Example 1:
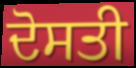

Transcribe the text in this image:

ਦੋਸਤੀ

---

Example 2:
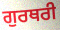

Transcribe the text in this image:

ਗੁਰਥਰੀ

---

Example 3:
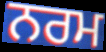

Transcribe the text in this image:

ਨਰਮ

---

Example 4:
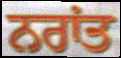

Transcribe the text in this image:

ਨਰਾਂਤ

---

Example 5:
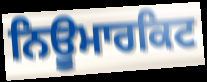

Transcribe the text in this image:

ਨਿਊਮਾਰਕਿਟ